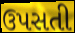
ઉપસતી